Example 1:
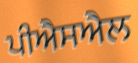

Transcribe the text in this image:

ਪੀਐਸਐਲ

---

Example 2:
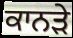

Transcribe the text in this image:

ਕਾਨੜੇ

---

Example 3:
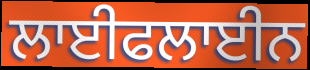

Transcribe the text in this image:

ਲਾਈਫਲਾਈਨ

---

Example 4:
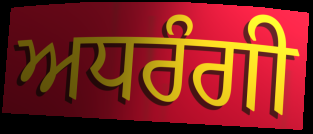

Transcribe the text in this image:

ਅਧਰੰਗੀ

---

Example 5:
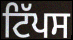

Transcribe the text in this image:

ਟਿੱਪਸ